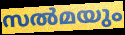
സൽമയും